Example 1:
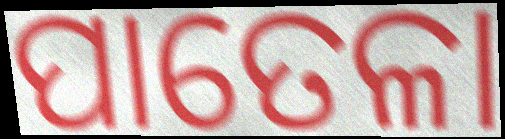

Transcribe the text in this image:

ପାତେଳା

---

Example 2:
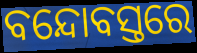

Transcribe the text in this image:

ବନ୍ଦୋବସ୍ତରେ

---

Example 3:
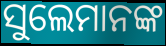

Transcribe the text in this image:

ସୁଲେମାନଙ୍କ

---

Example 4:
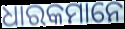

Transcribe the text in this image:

ଧାରକମାନେ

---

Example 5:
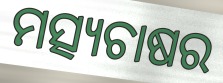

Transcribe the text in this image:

ମତ୍ସ୍ୟଚାଷର